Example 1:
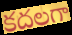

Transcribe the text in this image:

కదలగా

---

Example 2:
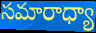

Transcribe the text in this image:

సమారాధ్యా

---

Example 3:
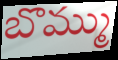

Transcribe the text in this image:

బొమ్ము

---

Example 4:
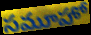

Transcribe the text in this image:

సమూహో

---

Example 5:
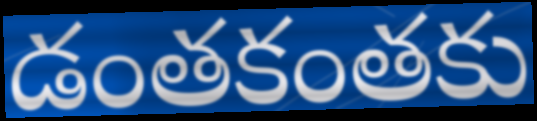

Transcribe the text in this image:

డంతకంతకు